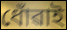
ধোঁৱাই